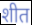
शीत